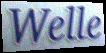
Welle